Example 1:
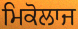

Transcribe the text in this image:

ਮਿਕੋਲਾਜ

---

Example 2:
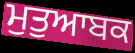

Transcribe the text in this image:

ਮੁਤੁਆਬਕ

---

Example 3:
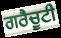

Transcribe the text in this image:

ਗਰੈਚੂਟੀ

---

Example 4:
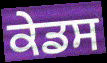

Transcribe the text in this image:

ਕੇਡਸ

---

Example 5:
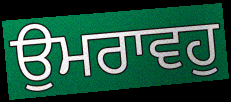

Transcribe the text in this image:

ਉਮਰਾਵਹੁ